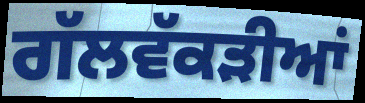
ਗੱਲਵੱਕੜੀਆਂ